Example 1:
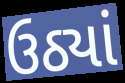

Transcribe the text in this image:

ઉઠ્યાં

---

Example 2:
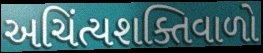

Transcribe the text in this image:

અચિંત્યશક્તિવાળો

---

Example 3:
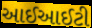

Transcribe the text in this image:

આઈઆઈટી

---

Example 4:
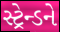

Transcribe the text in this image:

સ્ટ્રેન્ડને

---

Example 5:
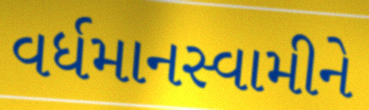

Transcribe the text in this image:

વર્ધમાનસ્વામીને